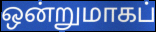
ஒன்றுமாகப்